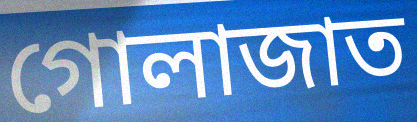
গোলাজাত